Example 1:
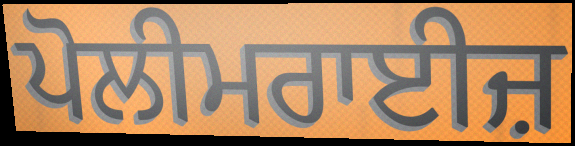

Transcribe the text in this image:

ਪੋਲੀਮਰਾਈਜ਼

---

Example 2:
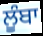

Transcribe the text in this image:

ਲੂੰਬਾ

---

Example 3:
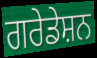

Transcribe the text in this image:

ਗਰੇਡੇਸ਼ਨ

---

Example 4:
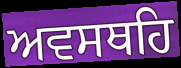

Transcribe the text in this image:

ਅਵਸਥਹਿ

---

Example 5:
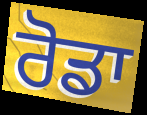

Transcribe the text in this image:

ਰੋਡਾ